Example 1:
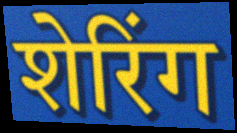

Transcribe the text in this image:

शेरिंग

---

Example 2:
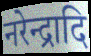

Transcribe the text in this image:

नरेन्द्रादि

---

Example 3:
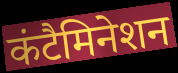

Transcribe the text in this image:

कंटैमिनेशन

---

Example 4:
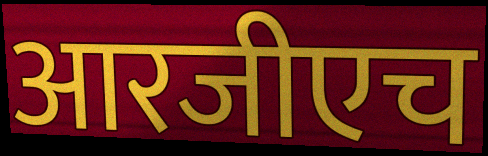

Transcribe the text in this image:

आरजीएच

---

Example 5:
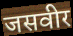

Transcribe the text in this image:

जसवीर